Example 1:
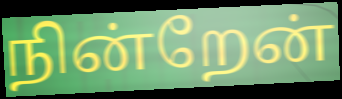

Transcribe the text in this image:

நின்றேன்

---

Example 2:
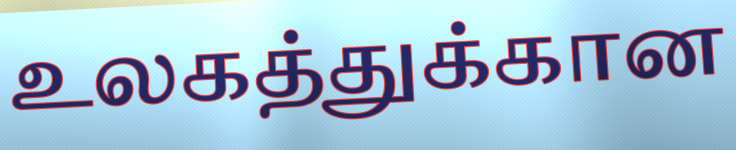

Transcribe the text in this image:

உலகத்துக்கான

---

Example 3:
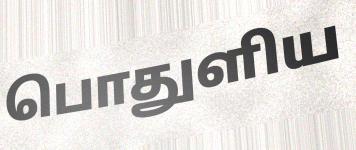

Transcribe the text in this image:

பொதுளிய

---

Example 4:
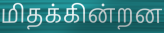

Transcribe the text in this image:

மிதக்கின்றன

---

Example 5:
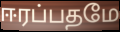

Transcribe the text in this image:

ஈரப்பதமே